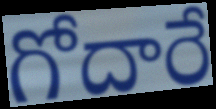
గోదారే